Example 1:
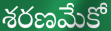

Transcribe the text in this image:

శరణమేకో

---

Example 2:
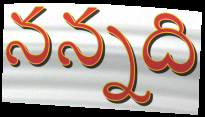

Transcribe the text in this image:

నన్నది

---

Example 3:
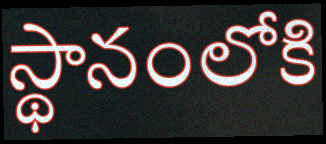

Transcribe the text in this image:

స్థానంలోకి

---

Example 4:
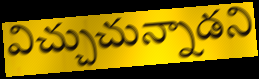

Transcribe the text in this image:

విచ్చుచున్నాడని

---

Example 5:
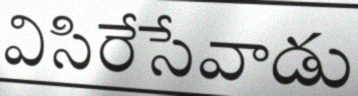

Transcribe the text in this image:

విసిరేసేవాడు